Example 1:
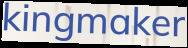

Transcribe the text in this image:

kingmaker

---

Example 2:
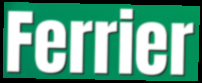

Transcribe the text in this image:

Ferrier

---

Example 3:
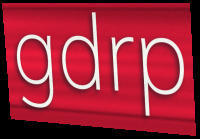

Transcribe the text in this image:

gdrp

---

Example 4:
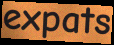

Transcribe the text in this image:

expats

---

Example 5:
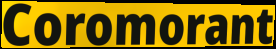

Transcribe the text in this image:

Coromorant